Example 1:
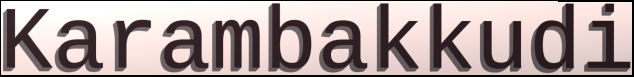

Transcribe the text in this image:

Karambakkudi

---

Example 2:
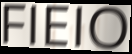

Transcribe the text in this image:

FIEIO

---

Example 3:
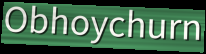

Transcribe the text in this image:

Obhoychurn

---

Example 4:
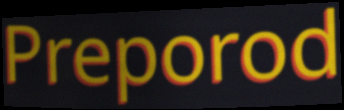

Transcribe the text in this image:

Preporod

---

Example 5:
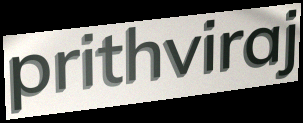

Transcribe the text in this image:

prithviraj